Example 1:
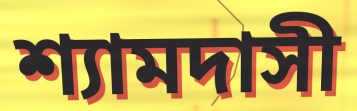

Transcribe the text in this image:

শ্যামদাসী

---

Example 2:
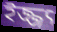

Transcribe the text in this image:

ইজ্জৎ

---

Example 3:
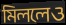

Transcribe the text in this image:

মিললেও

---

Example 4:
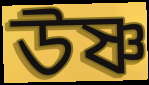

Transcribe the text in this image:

উষ্ণ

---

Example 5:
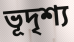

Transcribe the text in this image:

ভূদৃশ্য